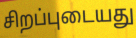
சிறப்புடையது